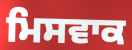
ਮਿਸਵਾਕ